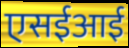
एसईआई